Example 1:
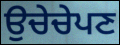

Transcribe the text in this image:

ਉਚੇਚੇਪਣ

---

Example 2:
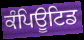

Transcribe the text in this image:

ਕੰਪਿਊਟਿਡ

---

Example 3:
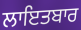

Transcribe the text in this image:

ਲਾਇਤਬਾਰ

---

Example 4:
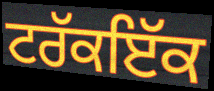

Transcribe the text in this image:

ਟਰੱਕਇੱਕ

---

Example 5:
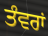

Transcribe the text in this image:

ਤੰਵਰਾਂ